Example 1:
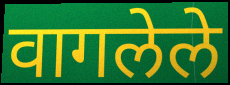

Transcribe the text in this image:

वागलेले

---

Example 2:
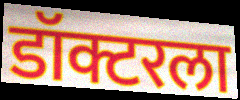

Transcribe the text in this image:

डॉक्टरला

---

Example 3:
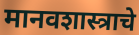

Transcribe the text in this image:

मानवशास्त्राचे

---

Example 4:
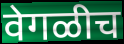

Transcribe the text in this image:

वेगळीच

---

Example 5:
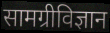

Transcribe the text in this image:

सामग्रीविज्ञान